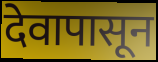
देवापासून